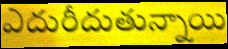
ఎదురీదుతున్నాయి